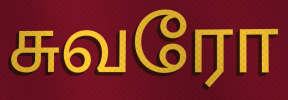
சுவரோ